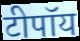
टीपॉय